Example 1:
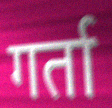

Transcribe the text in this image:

गर्ता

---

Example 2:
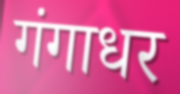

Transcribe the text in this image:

गंगाधर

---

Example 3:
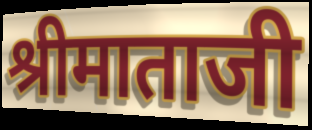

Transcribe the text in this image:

श्रीमाताजी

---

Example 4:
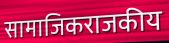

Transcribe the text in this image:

सामाजिकराजकीय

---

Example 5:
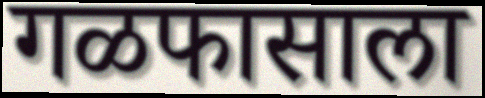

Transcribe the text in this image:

गळफासाला